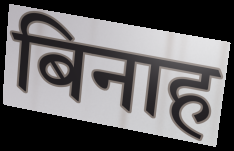
बिनाह